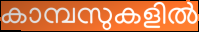
കാമ്പസുകളിൽ